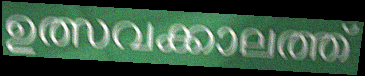
ഉത്സവക്കാലത്ത്